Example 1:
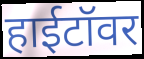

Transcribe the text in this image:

हाईटॉवर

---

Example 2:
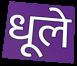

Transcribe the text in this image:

धूले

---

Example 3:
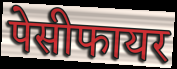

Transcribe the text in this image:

पेसीफायर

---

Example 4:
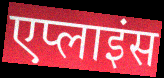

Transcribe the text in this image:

एप्लाइंस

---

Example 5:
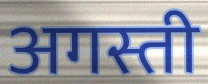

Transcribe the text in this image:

अगस्ती